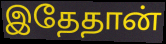
இதேதான்